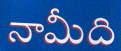
నామీది